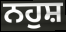
ਨਹੁਸ਼